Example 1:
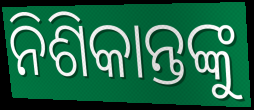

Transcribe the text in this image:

ନିଶିକାନ୍ତଙ୍କୁ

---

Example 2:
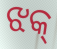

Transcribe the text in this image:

ଝକ୍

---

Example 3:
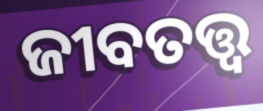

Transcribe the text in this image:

ଜୀବତତ୍ତ୍ୱ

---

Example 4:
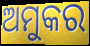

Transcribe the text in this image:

ଅମୁକର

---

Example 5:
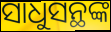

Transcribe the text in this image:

ସାଧୁସନ୍ଥଙ୍କ